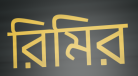
রিমির